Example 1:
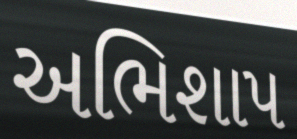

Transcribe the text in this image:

અભિશાપ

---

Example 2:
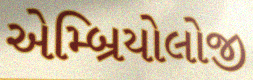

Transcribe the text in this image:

એમ્બ્રિયોલોજી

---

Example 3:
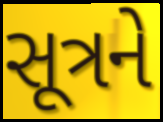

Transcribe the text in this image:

સૂત્રને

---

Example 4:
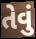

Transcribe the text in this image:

તેવું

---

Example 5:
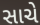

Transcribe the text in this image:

સાચે